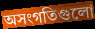
অসংগতিগুলো